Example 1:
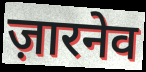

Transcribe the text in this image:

ज़ारनेव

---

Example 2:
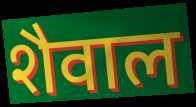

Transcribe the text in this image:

शैवाल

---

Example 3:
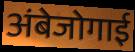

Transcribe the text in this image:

अंबेजोगाई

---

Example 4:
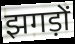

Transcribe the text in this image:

झगड़ों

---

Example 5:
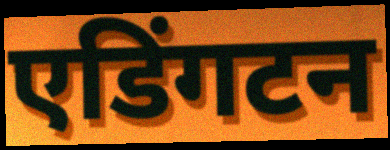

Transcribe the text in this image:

एडिंगटन